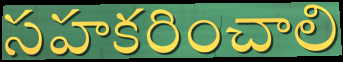
సహకరించాలి